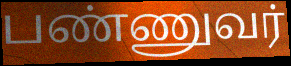
பண்ணுவர்